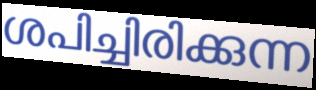
ശപിച്ചിരിക്കുന്ന